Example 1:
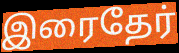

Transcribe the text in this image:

இரைதேர்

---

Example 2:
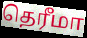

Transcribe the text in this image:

தெரீமா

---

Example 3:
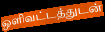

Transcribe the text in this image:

ஒளிவட்டத்துடன்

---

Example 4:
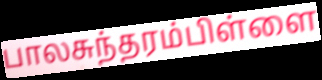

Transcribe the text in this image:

பாலசுந்தரம்பிள்ளை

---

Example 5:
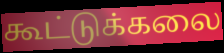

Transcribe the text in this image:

கூட்டுக்கலை